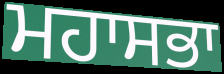
ਮਹਾਸਭਾ